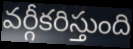
వర్గీకరిస్తుంది